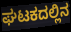
ಘಟಕದಲ್ಲಿನ